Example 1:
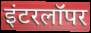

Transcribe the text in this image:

इंटरलॉपर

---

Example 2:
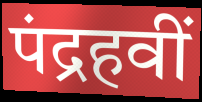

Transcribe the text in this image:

पंद्रहवीं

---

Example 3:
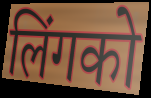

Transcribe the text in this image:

लिंगको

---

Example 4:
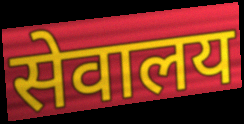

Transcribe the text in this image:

सेवालय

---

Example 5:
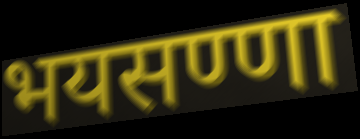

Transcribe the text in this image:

भयसण्णा